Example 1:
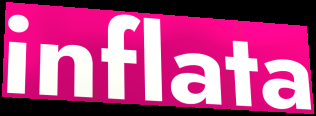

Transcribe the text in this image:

inflata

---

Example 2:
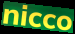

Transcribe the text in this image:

nicco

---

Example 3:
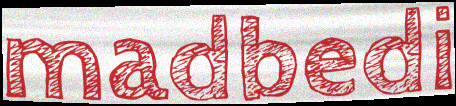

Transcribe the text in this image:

madbedi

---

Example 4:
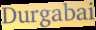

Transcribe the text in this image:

Durgabai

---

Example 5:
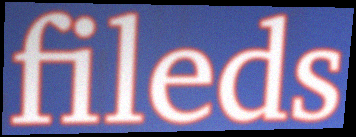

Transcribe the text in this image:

fileds